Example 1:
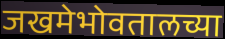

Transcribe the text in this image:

जखमेभोवतालच्या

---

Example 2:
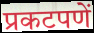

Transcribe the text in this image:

प्रकटपणें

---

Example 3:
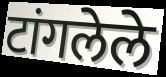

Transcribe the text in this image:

टांगलेले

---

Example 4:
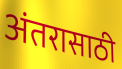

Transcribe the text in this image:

अंतरासाठी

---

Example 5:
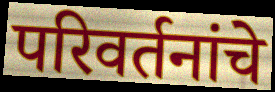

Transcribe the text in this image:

परिवर्तनांचे